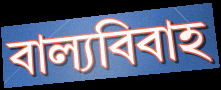
বাল্যবিবাহ